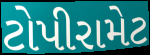
ટોપીરામેટ